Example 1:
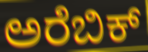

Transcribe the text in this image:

ಅರೆಬಿಕ್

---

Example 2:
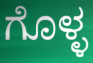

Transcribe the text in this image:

ಗೊಳ್ಳ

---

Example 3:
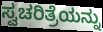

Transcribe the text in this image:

ಸ್ವಚರಿತ್ರೆಯನ್ನು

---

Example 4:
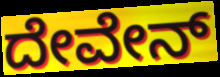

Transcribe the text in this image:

ದೇವೇನ್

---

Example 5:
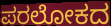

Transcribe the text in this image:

ಪರಲೋಕದ